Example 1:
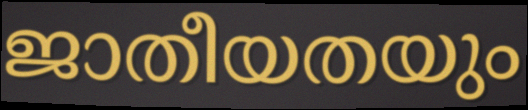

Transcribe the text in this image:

ജാതീയതയും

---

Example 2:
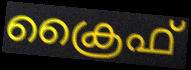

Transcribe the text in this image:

ക്രൈഫ്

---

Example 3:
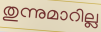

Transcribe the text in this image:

തുന്നുമാറില്ല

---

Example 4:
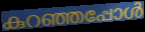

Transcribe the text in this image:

കുറഞ്ഞപ്പോൾ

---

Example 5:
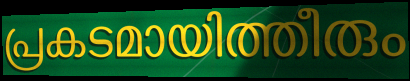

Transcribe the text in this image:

പ്രകടമായിത്തീരും